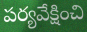
పర్యవేక్షించి